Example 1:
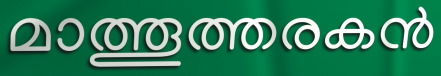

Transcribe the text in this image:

മാത്തൂത്തരകൻ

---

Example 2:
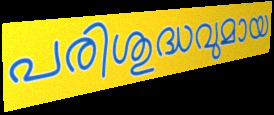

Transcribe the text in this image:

പരിശുദ്ധവുമായ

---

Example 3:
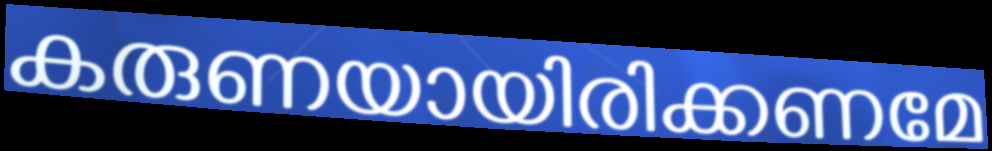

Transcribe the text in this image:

കരുണയായിരിക്കണമേ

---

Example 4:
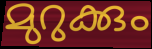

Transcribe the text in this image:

മുറുക്കും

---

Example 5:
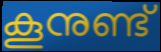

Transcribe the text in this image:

കൂനുണ്ട്